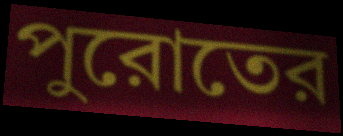
পুরোতের